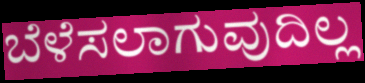
ಬೆಳೆಸಲಾಗುವುದಿಲ್ಲ